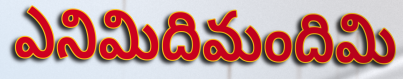
ఎనిమిదిమందిమి